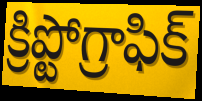
క్రిప్టోగ్రాఫిక్